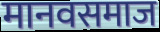
मानवसमाज